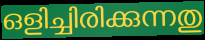
ഒളിച്ചിരിക്കുന്നതു